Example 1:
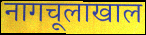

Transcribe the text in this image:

नागचूलाखाल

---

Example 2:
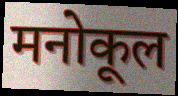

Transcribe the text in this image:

मनोकूल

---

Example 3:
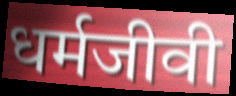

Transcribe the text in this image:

धर्मजीवी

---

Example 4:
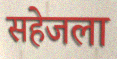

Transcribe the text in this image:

सहेजला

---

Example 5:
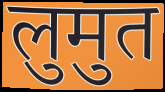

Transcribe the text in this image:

लुमुत